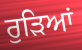
ਰੁੜਿਆਂ